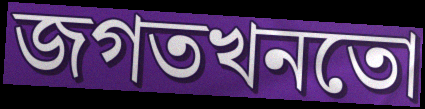
জগতখনতো